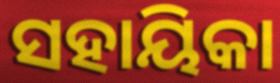
ସହାୟିକା